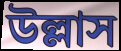
উল্লাস